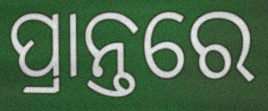
ପ୍ରାନ୍ତରେ